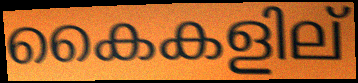
കൈകളില്